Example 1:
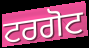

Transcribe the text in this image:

ਟਰਗੋਟ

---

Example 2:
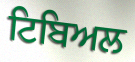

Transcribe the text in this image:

ਟਿਬਿਅਲ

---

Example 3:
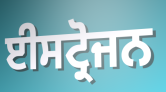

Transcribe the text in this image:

ਈਸਟ੍ਰੋਜਨ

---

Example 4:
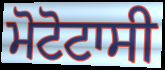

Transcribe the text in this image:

ਮੋਟੋਟਾਸੀ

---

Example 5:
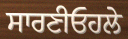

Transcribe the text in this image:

ਸਾਰਣੀਓਹਲੇ